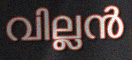
വില്ലൻ